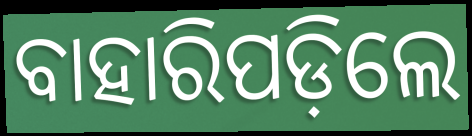
ବାହାରିପଡ଼ିଲେ